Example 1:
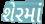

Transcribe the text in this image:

શેરમાં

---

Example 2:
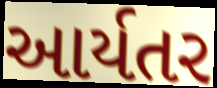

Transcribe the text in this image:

આર્યતર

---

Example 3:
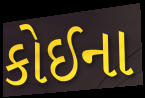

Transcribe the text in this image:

કોઈના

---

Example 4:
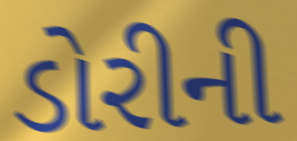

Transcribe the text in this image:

ડોરીની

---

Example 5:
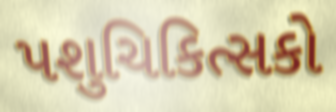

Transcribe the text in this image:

પશુચિકિત્સકો